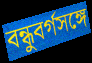
বন্ধুবর্গসঙ্গে